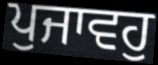
ਪੁਜਾਵਹੁ